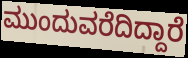
ಮುಂದುವರೆದಿದ್ದಾರೆ